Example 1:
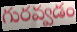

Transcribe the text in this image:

గురవ్వడం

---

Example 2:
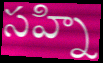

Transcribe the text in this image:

సహ్ని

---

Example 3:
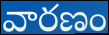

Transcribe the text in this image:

వారణం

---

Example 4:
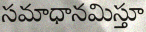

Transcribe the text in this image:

సమాధానమిస్తూ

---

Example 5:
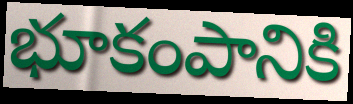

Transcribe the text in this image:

భూకంపానికి